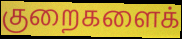
குறைகளைக்